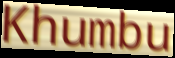
Khumbu